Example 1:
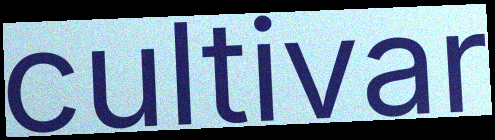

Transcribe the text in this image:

cultivar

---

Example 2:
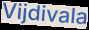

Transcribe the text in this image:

Vijdivala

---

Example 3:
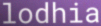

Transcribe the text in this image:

lodhia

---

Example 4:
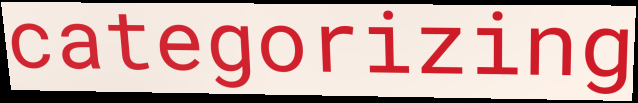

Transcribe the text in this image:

categorizing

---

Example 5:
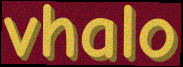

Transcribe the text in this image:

vhalo